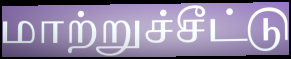
மாற்றுச்சீட்டு